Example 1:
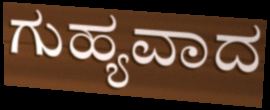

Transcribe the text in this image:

ಗುಹ್ಯವಾದ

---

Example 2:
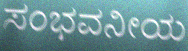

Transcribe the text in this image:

ಸಂಭವನೀಯ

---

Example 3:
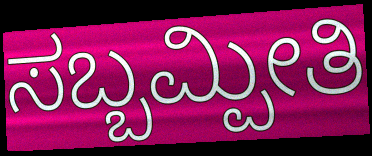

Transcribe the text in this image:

ಸಬ್ಬಮ್ಪೀತಿ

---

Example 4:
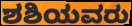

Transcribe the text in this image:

ಶಶಿಯವರು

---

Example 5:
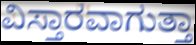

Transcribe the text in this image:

ವಿಸ್ತಾರವಾಗುತ್ತಾ